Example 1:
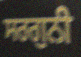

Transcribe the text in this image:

ਸਰਗੁਨੀ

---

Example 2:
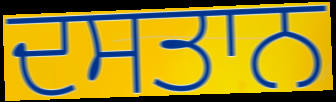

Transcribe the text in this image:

ਦਸਤਾਨ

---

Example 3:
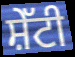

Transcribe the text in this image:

ਸ਼ੇੱਟੀ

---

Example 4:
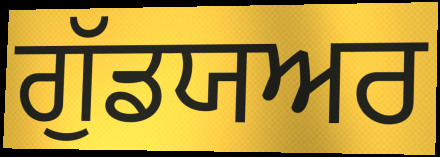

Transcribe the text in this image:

ਗੁੱਡਯਅਰ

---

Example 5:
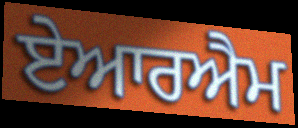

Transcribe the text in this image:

ਏਆਰਐਮ